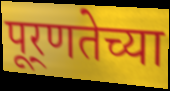
पूर्णतेच्या